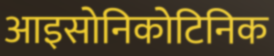
आइसोनिकोटिनिक